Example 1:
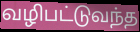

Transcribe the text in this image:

வழிபட்டுவந்த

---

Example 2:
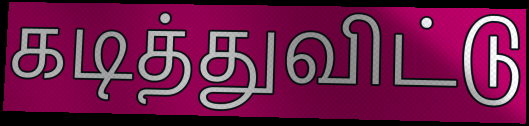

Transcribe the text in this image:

கடித்துவிட்டு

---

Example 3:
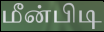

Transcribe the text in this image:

மீன்பிடி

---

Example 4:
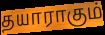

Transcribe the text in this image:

தயாராகும்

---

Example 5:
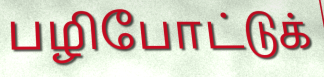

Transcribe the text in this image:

பழிபோட்டுக்